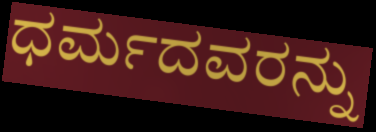
ಧರ್ಮದವರನ್ನು